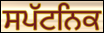
ਸਪੱਟਨਿਕ